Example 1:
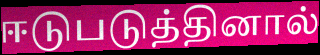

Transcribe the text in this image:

ஈடுபடுத்தினால்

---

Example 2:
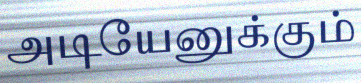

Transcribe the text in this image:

அடியேனுக்கும்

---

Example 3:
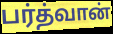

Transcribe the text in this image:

பர்த்வான்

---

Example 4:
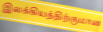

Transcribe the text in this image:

இலக்கியத்திற்குமான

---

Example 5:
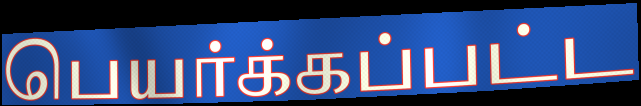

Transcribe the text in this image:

பெயர்க்கப்பட்ட